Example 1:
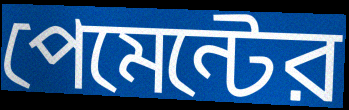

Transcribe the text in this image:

পেমেন্টের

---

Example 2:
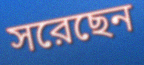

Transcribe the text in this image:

সরেছেন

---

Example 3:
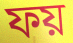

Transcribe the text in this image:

ফয়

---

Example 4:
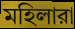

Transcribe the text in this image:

মহিলারা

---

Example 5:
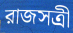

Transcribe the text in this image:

রাজসত্রী